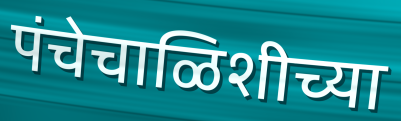
पंचेचाळिशीच्या